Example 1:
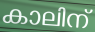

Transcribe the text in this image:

കാലിന്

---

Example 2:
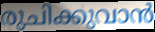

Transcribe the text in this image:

രുചിക്കുവാൻ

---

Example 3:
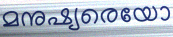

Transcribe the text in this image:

മനുഷ്യരെയോ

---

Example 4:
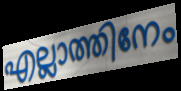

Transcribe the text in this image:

എല്ലാത്തിനേം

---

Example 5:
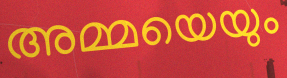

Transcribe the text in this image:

അമ്മയെയും